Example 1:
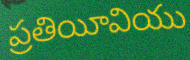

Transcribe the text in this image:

ప్రతియీవియు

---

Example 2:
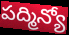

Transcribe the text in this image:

పద్మిన్యో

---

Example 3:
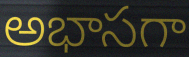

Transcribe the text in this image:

అభాసగా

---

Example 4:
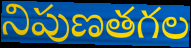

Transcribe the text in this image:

నిపుణతగల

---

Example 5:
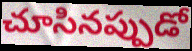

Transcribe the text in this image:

చూసినప్పుడో